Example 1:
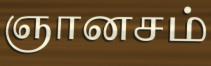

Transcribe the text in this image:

ஞானசம்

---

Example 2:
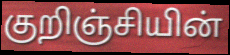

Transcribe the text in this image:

குறிஞ்சியின்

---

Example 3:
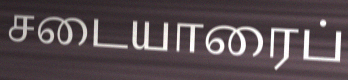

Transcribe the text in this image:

சடையாரைப்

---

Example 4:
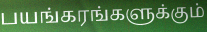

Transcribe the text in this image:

பயங்கரங்களுக்கும்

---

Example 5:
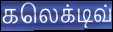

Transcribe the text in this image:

கலெக்டிவ்